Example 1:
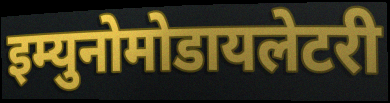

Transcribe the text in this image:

इम्युनोमोडायलेटरी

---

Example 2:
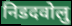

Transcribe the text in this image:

निडदवोलु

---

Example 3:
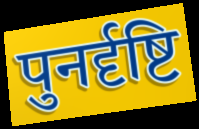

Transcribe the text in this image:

पुनर्दृष्टि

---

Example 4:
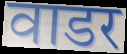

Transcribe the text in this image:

वाडर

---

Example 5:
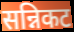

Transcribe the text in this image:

सन्निकट